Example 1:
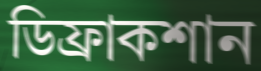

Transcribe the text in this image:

ডিফ্রাকশান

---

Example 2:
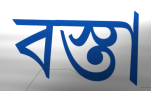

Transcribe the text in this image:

বস্তা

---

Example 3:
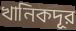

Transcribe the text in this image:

খানিকদূর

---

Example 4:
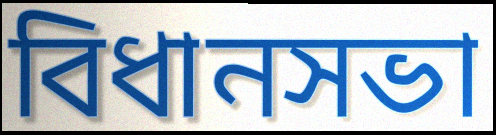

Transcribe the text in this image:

বিধানসভা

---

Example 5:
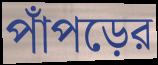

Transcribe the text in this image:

পাঁপড়ের